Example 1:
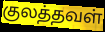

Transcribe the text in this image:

குலத்தவள்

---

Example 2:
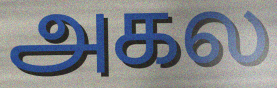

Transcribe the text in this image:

அகல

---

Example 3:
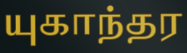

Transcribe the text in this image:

யுகாந்தர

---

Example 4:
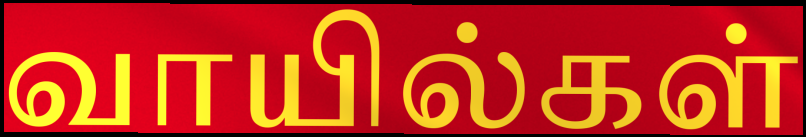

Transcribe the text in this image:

வாயில்கள்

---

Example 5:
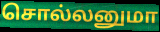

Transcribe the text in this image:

சொல்லனுமா